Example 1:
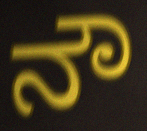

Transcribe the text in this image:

ನೌ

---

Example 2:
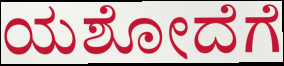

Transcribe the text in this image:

ಯಶೋದೆಗೆ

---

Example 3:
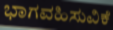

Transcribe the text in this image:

ಭಾಗವಹಿಸುವಿಕೆ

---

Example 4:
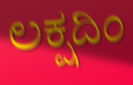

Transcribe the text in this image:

ಲಕ್ಷದಿಂ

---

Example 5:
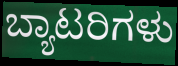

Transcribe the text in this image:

ಬ್ಯಾಟರಿಗಳು